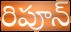
రిపూన్